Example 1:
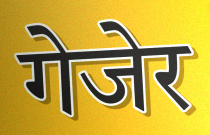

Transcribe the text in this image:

गेजेर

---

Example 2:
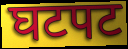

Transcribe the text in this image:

घटपट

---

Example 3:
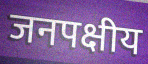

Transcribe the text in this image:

जनपक्षीय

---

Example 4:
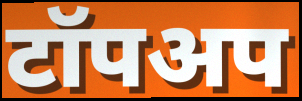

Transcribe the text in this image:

टॉपअप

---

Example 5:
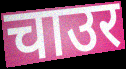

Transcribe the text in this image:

चाउर